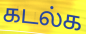
கடல்க